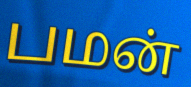
பமன்